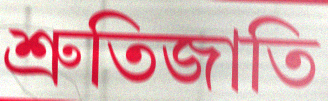
শ্রুতিজাতি